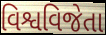
વિશ્વવિજેતા